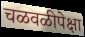
चळवळीपेक्षा